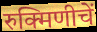
रुक्मिणीचें